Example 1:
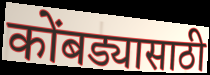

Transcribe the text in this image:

कोंबड्यासाठी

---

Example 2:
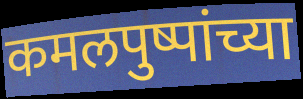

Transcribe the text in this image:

कमलपुष्पांच्या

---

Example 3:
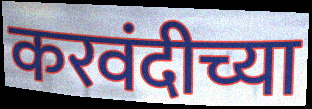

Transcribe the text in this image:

करवंदीच्या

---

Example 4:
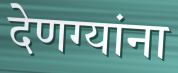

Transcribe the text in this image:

देणग्यांना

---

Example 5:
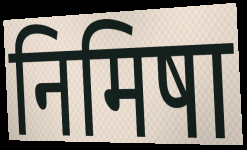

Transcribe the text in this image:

निमिषा